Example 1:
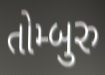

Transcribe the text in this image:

તોમ્બુરુ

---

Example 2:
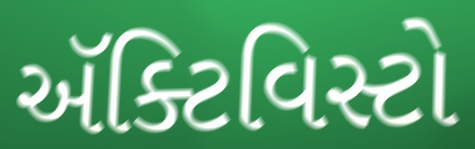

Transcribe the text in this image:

ઍક્ટિવિસ્ટો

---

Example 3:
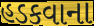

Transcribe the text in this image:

હડકવાના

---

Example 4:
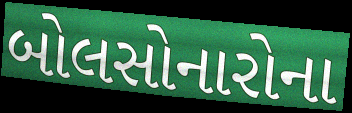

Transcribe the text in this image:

બોલસોનારોના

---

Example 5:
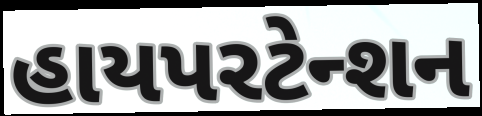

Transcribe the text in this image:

હાયપરટેન્શન